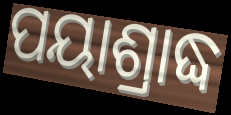
ପୟାଶ୍ରାଦ୍ଧ